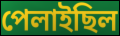
পেলাইছিল